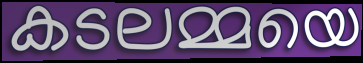
കടലമ്മയെ